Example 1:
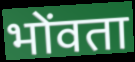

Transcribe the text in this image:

भोंवता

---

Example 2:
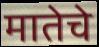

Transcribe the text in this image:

मातेचे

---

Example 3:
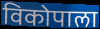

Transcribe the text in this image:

विकोपाला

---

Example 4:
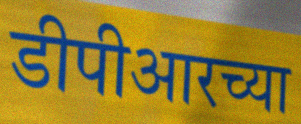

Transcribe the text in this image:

डीपीआरच्या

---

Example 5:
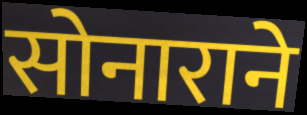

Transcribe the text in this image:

सोनाराने